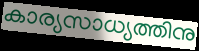
കാര്യസാധ്യത്തിനു